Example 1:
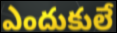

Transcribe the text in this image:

ఎందుకులే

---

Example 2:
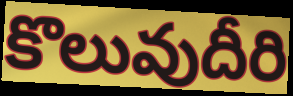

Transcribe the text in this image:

కొలువుదీరి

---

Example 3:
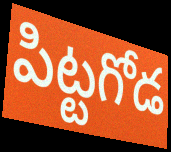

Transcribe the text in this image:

పిట్టగోడ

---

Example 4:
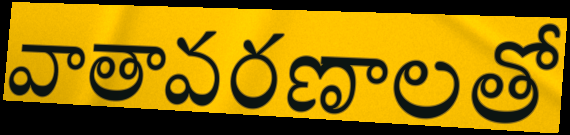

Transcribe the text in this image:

వాతావరణాలతో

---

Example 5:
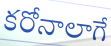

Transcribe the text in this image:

కరోనాలాగే